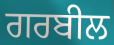
ਗਰਬੀਲ